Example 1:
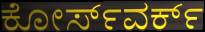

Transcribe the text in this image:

ಕೋರ್ಸ್‌ವರ್ಕ್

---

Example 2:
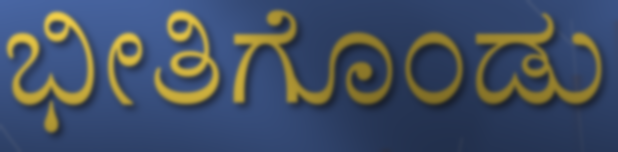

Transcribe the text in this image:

ಭೀತಿಗೊಂಡು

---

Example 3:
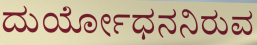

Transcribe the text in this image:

ದುರ್ಯೋಧನನಿರುವ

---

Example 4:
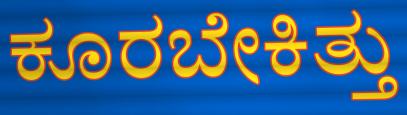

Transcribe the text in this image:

ಕೂರಬೇಕಿತ್ತು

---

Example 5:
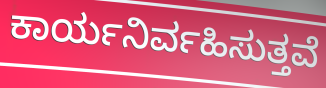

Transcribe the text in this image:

ಕಾರ್ಯನಿರ್ವಹಿಸುತ್ತವೆ